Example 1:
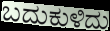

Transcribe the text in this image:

ಬದುಕುಳಿದು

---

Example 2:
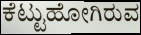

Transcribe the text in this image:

ಕೆಟ್ಟುಹೋಗಿರುವ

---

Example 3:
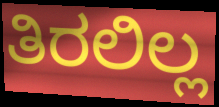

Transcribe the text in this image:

ತಿರಲಿಲ್ಲ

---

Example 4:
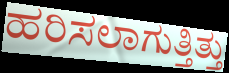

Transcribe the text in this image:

ಹರಿಸಲಾಗುತ್ತಿತ್ತು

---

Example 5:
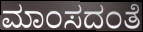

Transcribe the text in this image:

ಮಾಂಸದಂತೆ